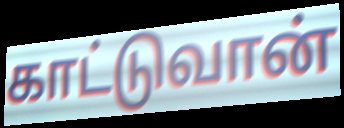
காட்டுவான்